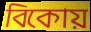
বিকোয়